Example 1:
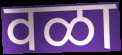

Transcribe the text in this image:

वळा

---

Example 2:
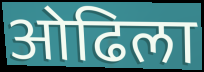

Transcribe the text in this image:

ओढिला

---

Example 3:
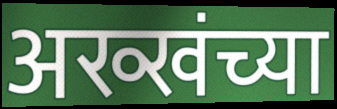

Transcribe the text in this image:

अख्खंच्या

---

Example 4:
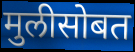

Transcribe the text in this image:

मुलीसोबत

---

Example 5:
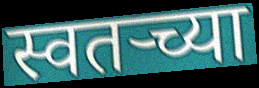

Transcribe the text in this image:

स्वतर्‍च्या